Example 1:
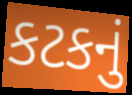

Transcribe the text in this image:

કટકનું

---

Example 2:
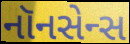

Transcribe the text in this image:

નૉનસેન્સ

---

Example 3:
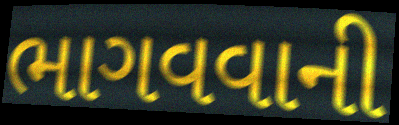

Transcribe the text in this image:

ભાગવવાની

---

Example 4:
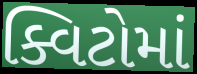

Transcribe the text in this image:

ક્વિટોમાં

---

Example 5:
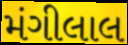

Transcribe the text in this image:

મંગીલાલ